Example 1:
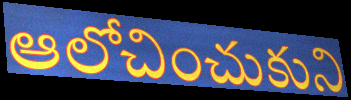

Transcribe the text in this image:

ఆలోచించుకుని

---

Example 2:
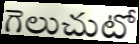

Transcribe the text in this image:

గెలుచుటో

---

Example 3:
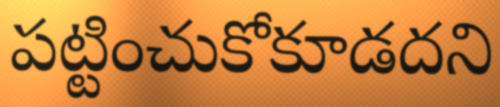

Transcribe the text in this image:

పట్టించుకోకూడదని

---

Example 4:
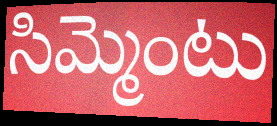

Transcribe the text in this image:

సిమ్మెంటు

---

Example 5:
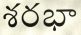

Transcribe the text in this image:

శరభా